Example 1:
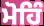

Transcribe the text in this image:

ਮੋਹਿੰ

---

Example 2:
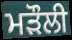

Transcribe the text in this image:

ਮੜੌਲੀ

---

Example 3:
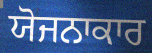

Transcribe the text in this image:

ਯੋਜਨਾਕਾਰ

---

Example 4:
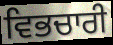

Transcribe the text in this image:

ਵਿਭਚਾਰੀ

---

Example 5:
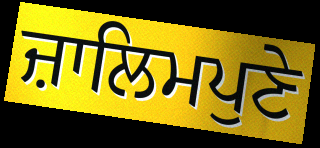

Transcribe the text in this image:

ਜ਼ਾਲਿਮਪੁਣੇ